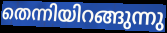
തെന്നിയിറങ്ങുന്നു